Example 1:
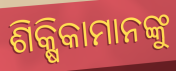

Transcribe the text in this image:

ଶିକ୍ଷିକାମାନଙ୍କୁ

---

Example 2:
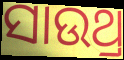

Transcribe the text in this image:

ସାଉଥ୍ର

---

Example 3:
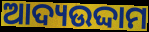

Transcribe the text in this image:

ଆଦ୍ୟଉଦ୍ଦାମ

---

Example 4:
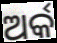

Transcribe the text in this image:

ଅର୍କ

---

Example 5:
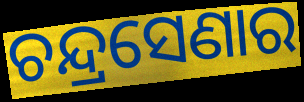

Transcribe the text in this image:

ଚନ୍ଦ୍ରସେଣାର